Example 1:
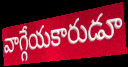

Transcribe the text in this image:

వాగ్గేయకారుడూ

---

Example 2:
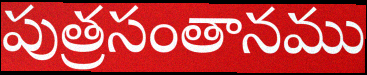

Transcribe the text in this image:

పుత్రసంతానము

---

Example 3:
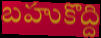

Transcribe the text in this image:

బహుకొద్ది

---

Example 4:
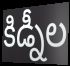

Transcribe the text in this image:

కిడ్నీల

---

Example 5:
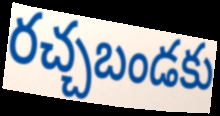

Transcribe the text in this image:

రచ్చబండకు